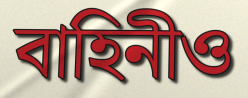
বাহিনীও